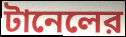
টানেলের